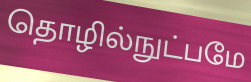
தொழில்நுட்பமே